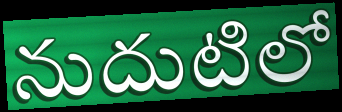
నుదుటిలో